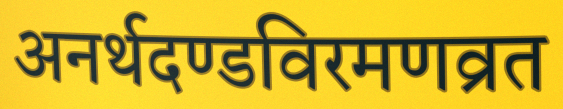
अनर्थदण्डविरमणव्रत